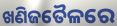
ଖଣିଜତୈଳରେ